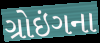
ગ્રોઇંગના